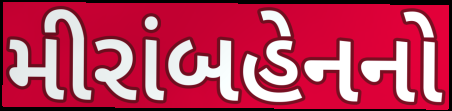
મીરાંબહેનનો